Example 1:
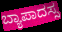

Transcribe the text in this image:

ಬ್ಯಾಪಾದಸ್ಸ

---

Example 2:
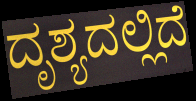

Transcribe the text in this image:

ದೃಶ್ಯದಲ್ಲಿದೆ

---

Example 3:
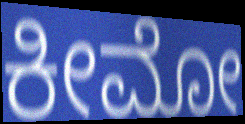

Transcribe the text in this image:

ಕೀಮೋ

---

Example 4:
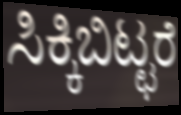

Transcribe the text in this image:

ಸಿಕ್ಕಿಬಿಟ್ಟರೆ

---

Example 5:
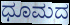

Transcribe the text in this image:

ಧೂಮದ